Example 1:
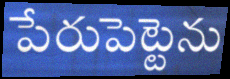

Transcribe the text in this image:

పేరుపెట్టెను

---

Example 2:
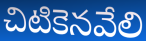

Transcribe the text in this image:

చిటికెనవేలి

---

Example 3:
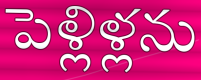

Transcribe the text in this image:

పెళ్లిళ్లను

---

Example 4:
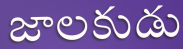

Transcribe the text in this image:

జాలకుడు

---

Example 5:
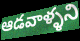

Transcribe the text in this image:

ఆడవాళ్ళని